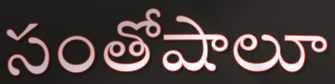
సంతోషాలూ